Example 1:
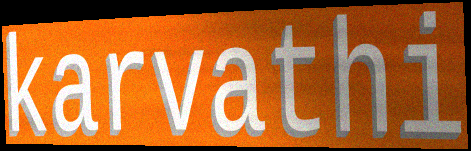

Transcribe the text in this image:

karvathi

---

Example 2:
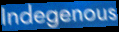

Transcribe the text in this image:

Indegenous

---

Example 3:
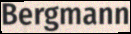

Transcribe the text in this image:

Bergmann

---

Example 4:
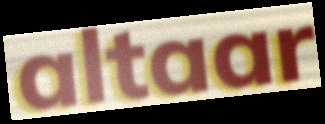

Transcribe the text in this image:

altaar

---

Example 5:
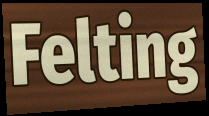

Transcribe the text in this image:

Felting